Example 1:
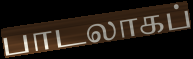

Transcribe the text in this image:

பாடலாகப்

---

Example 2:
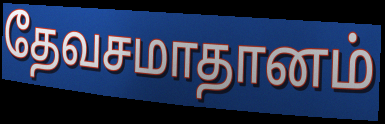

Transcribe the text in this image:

தேவசமாதானம்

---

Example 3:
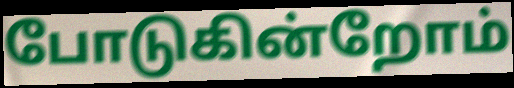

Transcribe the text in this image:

போடுகின்றோம்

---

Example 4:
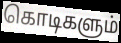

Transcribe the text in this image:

கொடிகளும்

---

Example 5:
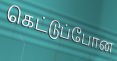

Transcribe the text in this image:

கெட்டுப்போன